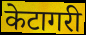
केटागरी